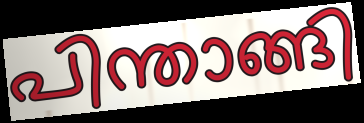
പിന്താങ്ങി